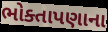
ભોક્તાપણાના